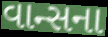
વાન્સના